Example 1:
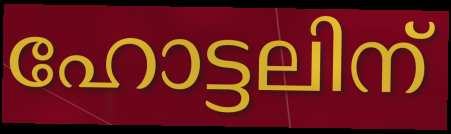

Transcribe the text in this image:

ഹോട്ടലിന്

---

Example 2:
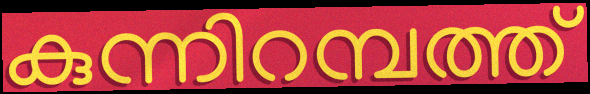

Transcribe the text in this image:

കുന്നിറമ്പത്ത്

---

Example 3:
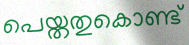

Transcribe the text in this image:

പെയ്തതുകൊണ്ട്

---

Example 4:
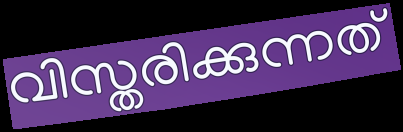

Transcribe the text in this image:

വിസ്തരിക്കുന്നത്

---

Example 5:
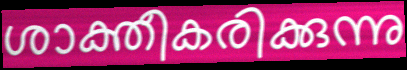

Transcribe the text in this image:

ശാക്തീകരിക്കുന്നു